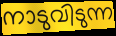
നാടുവിടുന്ന